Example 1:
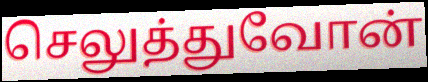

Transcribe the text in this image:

செலுத்துவோன்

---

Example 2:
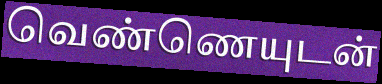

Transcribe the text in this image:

வெண்ணெயுடன்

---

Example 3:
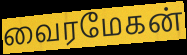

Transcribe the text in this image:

வைரமேகன்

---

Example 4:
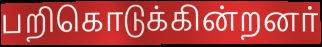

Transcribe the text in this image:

பறிகொடுக்கின்றனர்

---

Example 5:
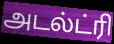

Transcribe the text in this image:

அடல்ட்ரி